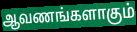
ஆவணங்களாகும்